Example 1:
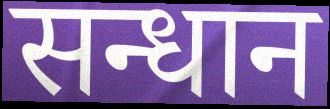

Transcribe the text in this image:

सन्धान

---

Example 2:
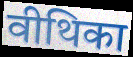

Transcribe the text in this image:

वीथिका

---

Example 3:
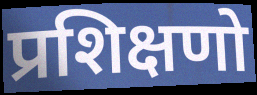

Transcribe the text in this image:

प्रशिक्षणो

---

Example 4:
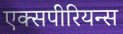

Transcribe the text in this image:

एक्सपीरियन्स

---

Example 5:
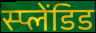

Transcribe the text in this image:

स्प्लेंडिड